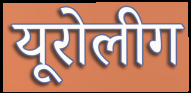
यूरोलीग